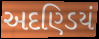
અદણ્ડિયં